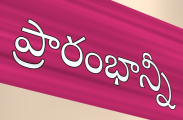
ప్రారంభాన్నీ